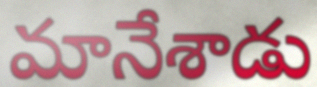
మానేశాడు